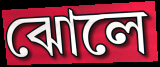
ঝোলে